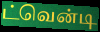
ட்வென்டி